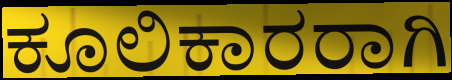
ಕೂಲಿಕಾರರಾಗಿ